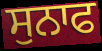
ਸੁਨਾਫ